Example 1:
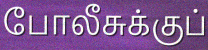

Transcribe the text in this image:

போலீசுக்குப்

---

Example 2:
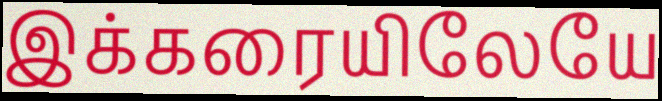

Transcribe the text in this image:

இக்கரையிலேயே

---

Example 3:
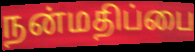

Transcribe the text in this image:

நன்மதிப்பை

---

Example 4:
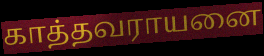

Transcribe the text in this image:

காத்தவராயனை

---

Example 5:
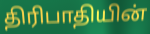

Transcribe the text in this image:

திரிபாதியின்